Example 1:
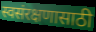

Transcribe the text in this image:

स्वसंरक्षणासाठी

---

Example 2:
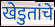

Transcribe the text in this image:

खेडुतांचे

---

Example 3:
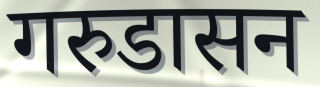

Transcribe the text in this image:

गरुडासन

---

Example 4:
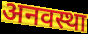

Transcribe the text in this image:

अनवस्था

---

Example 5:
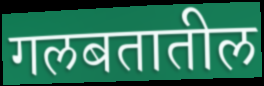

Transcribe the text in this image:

गलबतातील